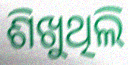
ଶିଖୁଥିଲି